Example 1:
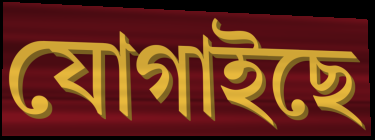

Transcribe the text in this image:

যোগাইছে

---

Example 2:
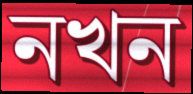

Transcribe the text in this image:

নখন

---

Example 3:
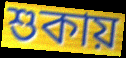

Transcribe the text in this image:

শুকায়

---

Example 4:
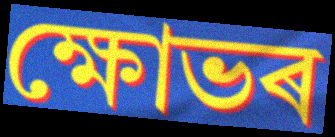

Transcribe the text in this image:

ক্ষোভৰ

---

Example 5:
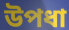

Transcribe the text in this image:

উপধা